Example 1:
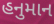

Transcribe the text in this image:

હનુમાન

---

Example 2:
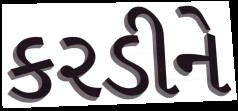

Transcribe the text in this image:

કરડીને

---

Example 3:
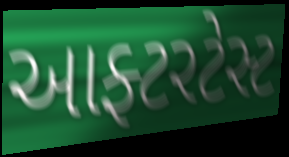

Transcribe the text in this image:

આફ્ટરટેસ્ટ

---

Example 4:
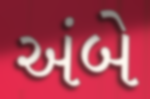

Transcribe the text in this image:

અંબે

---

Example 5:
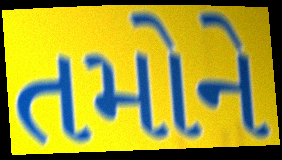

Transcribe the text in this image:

તમોને